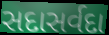
સદાસર્વદા